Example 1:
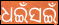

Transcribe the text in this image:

ଧଇଁସଇଁ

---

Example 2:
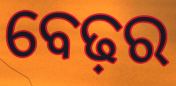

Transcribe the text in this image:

ବେଢ଼ର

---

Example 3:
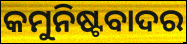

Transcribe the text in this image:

କମୁନିଷ୍ଟବାଦର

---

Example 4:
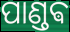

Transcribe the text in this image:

ପାଣ୍ଡଵ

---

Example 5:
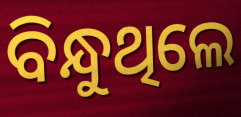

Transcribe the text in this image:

ବିନ୍ଧୁଥିଲେ